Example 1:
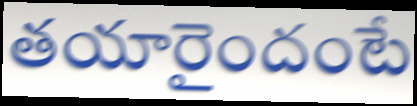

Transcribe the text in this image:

తయారైందంటే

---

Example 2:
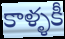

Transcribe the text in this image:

కాళ్ళకీ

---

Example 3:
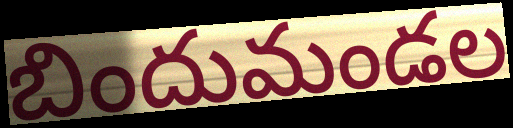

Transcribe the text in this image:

బిందుమండల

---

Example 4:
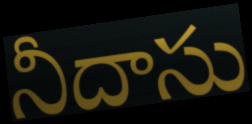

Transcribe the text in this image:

నీదాసు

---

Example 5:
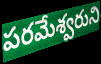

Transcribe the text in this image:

పరమేశ్వరుని